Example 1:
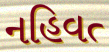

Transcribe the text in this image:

નહિવત્‍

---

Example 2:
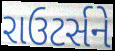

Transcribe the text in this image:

રાઉટર્સને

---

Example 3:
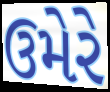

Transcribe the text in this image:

ઉમેરે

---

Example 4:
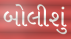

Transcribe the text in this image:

બોલીશું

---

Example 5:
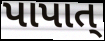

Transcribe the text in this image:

પાપાત્